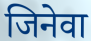
जिनेवा